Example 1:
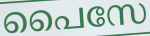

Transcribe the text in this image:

പൈസേ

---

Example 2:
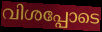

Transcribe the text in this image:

വിശപ്പോടെ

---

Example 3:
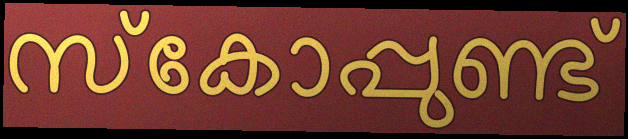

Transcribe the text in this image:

സ്കോപ്പുണ്ട്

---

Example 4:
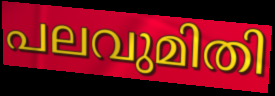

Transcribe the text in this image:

പലവുമിതി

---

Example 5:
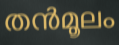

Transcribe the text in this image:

തൻമൂലം